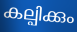
കല്പിക്കും